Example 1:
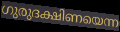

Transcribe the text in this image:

ഗുരുദക്ഷിണയെന്ന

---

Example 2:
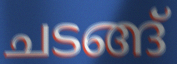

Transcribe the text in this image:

ചടങ്ങ്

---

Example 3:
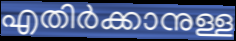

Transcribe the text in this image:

എതിർക്കാനുള്ള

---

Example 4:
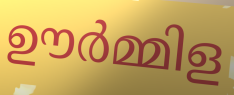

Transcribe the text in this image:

ഊർമ്മിള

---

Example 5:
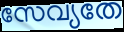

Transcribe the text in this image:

സേവ്യതേ